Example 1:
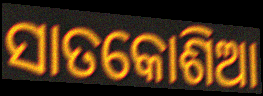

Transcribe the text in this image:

ସାତକୋଶିଆ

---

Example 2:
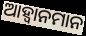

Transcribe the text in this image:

ଆହ୍ୱାନମାନ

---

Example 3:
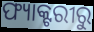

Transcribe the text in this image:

ଫ୍ୟାକ୍ଟରୀରୁ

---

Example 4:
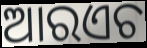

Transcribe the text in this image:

ଆରଏଚ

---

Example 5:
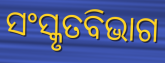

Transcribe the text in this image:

ସଂସ୍କୃତବିଭାଗ